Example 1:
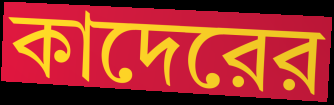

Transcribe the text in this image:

কাদেরের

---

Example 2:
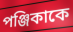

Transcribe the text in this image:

পঞ্জিকাকে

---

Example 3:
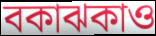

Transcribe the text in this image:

বকাঝকাও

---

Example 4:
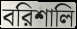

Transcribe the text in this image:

বরিশালি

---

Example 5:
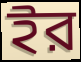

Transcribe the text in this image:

ইর